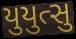
યુયુત્સુ